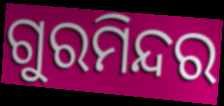
ଗୁରମିନ୍ଦର